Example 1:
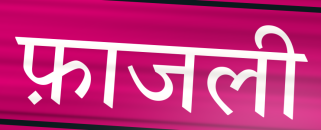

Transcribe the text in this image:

फ़ाजली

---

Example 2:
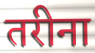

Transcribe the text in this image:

तरीना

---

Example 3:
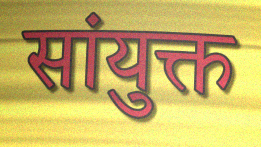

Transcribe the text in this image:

सांयुक्त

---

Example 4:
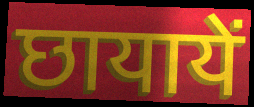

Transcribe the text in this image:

छायायें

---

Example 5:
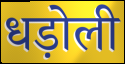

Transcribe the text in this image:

धड़ोली